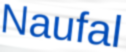
Naufal